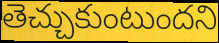
తెచ్చుకుంటుందని